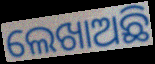
ଲେଖାଅଛି